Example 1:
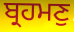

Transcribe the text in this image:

ਬ੍ਰਹਮਣੁ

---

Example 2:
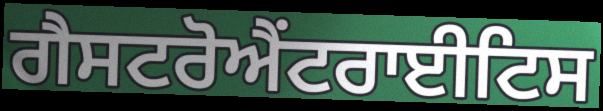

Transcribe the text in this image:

ਗੈਸਟਰੋਐਂਟਰਾਈਟਿਸ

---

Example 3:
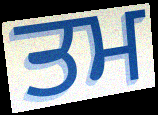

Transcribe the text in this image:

ਤਮ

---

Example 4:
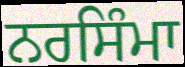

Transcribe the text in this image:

ਨਰਸਿੰਮਾ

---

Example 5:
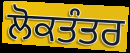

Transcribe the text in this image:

ਲੋਕਤੰਤਰ